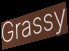
Grassy